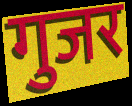
गुजर